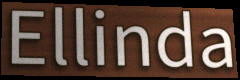
Ellinda